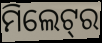
ମିଲେଟ୍‌ର